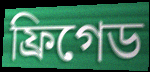
ফ্রিগেড